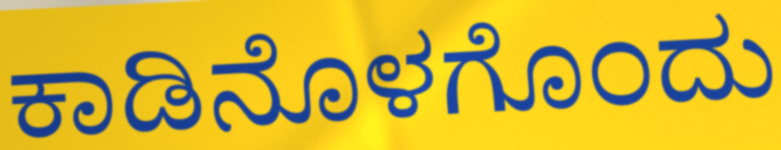
ಕಾಡಿನೊಳಗೊಂದು